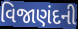
વિજાણંદની